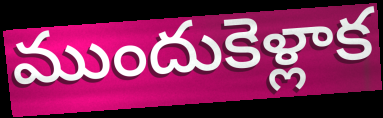
ముందుకెళ్లాక